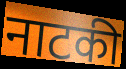
नाटकी